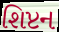
શિપ્ટન